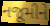
નજૂમીને